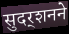
सुदर्शनने